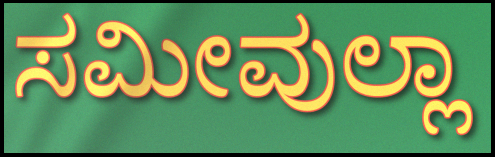
ಸಮೀವುಲ್ಲಾ